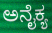
ಅನೈಕ್ಯ